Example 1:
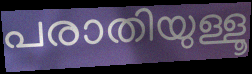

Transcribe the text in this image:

പരാതിയുള്ളൂ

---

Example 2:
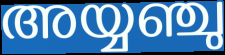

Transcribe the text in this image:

അയ്യഞ്ചു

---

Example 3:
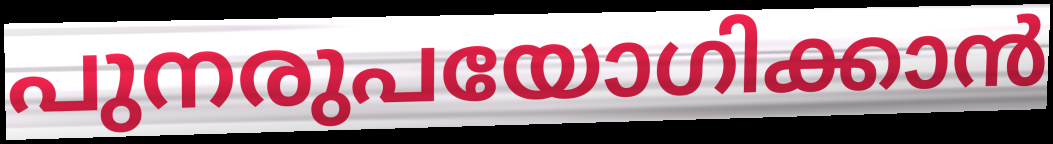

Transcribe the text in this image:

പുനരുപയോഗിക്കാൻ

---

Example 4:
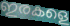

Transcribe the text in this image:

ഇരകളെ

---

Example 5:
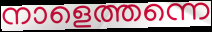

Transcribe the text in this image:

നാളെത്തന്നെ